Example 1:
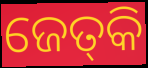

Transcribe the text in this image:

ଜେତ୍‌କି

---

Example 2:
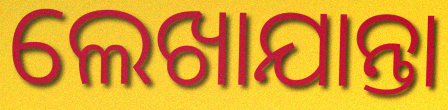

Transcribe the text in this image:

ଲେଖାଯାନ୍ତା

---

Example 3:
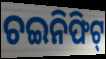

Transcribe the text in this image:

ଚଇନିଫିଟ୍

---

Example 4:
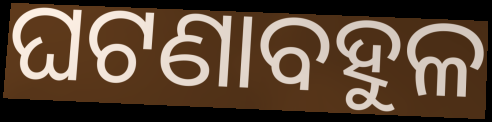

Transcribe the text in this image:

ଘଟଣାବହୁଳ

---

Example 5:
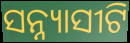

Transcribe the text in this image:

ସନ୍ନ୍ୟାସୀଟି